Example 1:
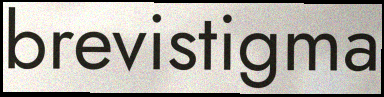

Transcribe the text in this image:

brevistigma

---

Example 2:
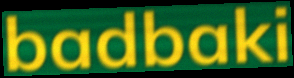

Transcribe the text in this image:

badbaki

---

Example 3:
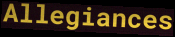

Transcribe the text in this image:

Allegiances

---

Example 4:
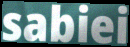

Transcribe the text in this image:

sabiei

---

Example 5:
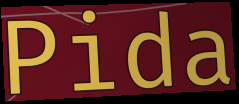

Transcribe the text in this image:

Pida